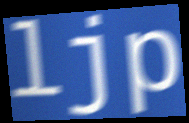
ljp